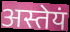
अस्तेयं